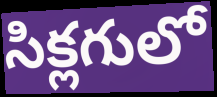
సిక్లగులో